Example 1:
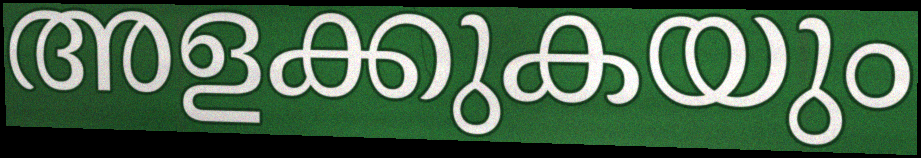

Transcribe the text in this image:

അളക്കുകയും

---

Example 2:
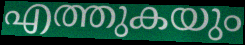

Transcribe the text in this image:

എത്തുകയും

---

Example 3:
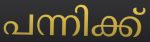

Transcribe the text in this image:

പന്നിക്ക്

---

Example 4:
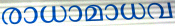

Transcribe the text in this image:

രാധാമാധവ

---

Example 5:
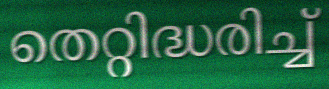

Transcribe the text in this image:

തെറ്റിദ്ധരിച്ച്